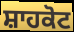
ਸ਼ਾਹਕੋਟ